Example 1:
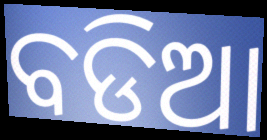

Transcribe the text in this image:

ବଡିଆ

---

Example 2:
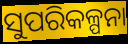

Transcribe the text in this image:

ସୁପରିକଳ୍ପନା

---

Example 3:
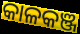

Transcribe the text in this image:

କାଳକଞ୍ଜ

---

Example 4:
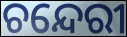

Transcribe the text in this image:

ଚନ୍ଦେରୀ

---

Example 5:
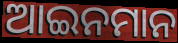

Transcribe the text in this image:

ଆଇନମାନ